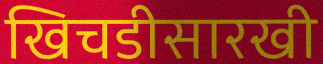
खिचडीसारखी